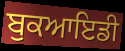
ਬੁਕਆਇਡੀ